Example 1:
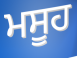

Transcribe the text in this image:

ਮਸੂਹ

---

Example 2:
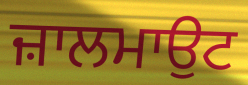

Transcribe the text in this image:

ਜ਼ਾਲਮਾਉਟ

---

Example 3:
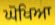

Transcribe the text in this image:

ਘੋਖਿਆ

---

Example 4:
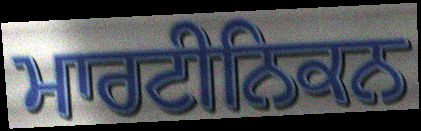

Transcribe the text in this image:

ਮਾਰਟੀਨਿਕਨ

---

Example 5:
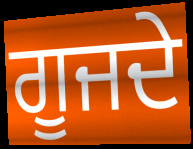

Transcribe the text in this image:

ਗੂਜਦੇ